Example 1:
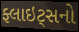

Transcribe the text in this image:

ફ્લાઇટ્સનો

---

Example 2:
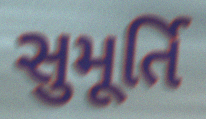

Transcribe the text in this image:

સુમૂર્તિ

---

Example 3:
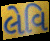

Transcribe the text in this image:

લેવિ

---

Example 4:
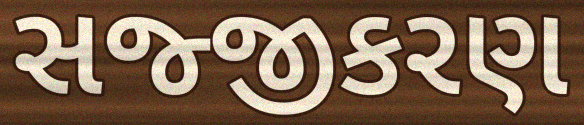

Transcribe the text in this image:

સજ્જીકરણ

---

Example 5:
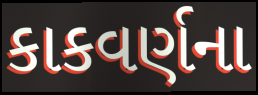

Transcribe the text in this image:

કાકવર્ણના